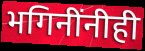
भगिनींनीही